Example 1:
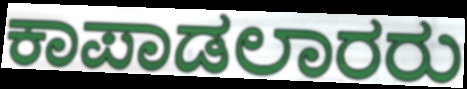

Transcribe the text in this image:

ಕಾಪಾಡಲಾರರು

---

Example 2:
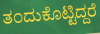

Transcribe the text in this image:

ತಂದುಕೊಟ್ಟಿದ್ದರೆ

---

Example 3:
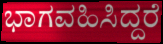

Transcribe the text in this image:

ಭಾಗವಹಿಸಿದ್ದರೆ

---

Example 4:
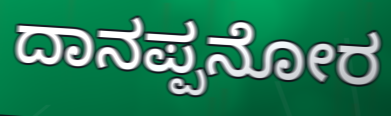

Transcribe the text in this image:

ದಾನಪ್ಪನೋರ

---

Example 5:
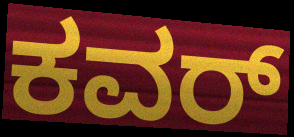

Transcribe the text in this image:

ಕವರ್